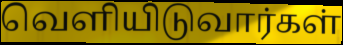
வெளியிடுவார்கள்